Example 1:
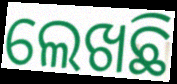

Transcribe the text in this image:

ଲେଖଛି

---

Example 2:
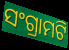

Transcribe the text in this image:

ସଂଗ୍ରାମଟି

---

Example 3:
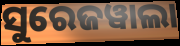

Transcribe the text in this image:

ସୁରେଜୱାଲା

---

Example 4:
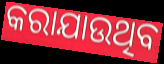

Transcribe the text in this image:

କରାଯାଉଥିବ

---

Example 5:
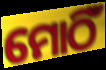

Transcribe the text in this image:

ମୋଠିଁ